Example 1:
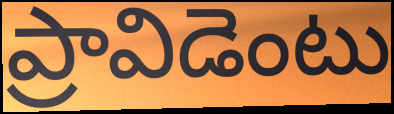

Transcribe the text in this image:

ప్రావిడెంటు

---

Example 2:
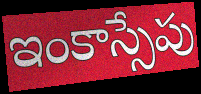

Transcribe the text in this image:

ఇంకాస్సేపు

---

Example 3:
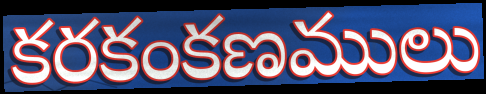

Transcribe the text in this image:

కరకంకణములు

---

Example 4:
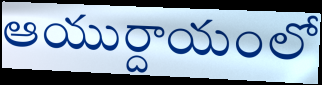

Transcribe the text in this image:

ఆయుర్దాయంలో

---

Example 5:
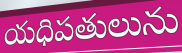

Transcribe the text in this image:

యధిపతులును